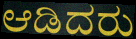
ಆಡಿದರು